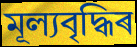
মূল্যবৃদ্ধিৰ